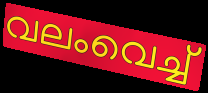
വലംവെച്ച്